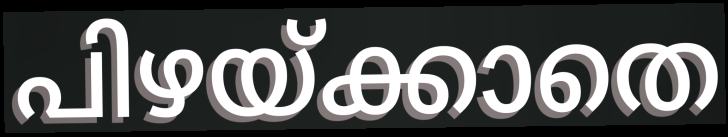
പിഴയ്ക്കാതെ